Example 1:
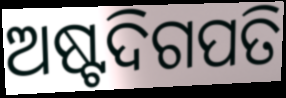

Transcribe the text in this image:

ଅଷ୍ଟଦିଗପତି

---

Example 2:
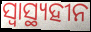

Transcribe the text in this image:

ସ୍ୱାସ୍ଥ୍ୟହୀନ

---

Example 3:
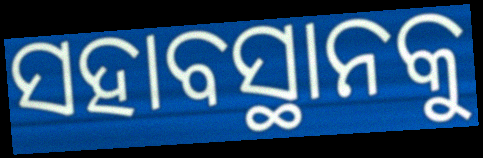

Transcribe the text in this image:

ସହାବସ୍ଥାନକୁ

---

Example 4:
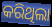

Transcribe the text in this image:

କରିଥିଲା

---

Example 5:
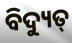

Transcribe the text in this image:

ବିଦ୍ୟୁତ୍